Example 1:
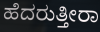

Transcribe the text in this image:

ಹೆದರುತ್ತೀರಾ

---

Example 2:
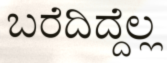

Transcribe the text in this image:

ಬರೆದಿದ್ದೆಲ್ಲ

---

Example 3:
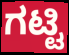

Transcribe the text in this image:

ಗಟ್ಟಿ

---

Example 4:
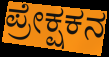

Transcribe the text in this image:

ಪ್ರೇಕ್ಷಕನ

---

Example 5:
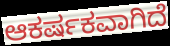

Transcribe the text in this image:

ಆಕರ್ಷಕವಾಗಿದೆ